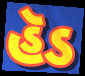
હૅડ